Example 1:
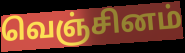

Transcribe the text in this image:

வெஞ்சினம்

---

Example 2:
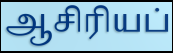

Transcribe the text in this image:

ஆசிரியப்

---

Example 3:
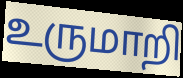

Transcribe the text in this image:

உருமாறி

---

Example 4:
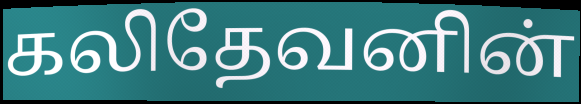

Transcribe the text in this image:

கலிதேவனின்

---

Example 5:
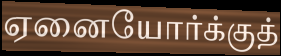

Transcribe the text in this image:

ஏனையோர்க்குத்